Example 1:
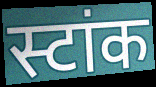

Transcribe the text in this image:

स्टांक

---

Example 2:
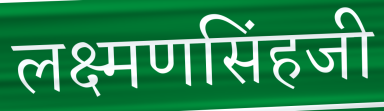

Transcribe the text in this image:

लक्ष्मणसिंहजी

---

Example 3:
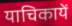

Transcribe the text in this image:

याचिकायें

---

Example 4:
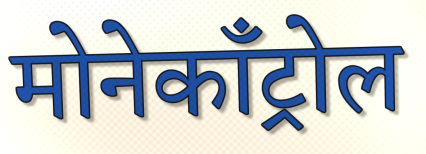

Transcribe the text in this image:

मोनेकॉंट्रोल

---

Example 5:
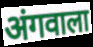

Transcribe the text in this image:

अंगवाला